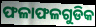
ଫଳାଫଳଗୁଡିକ